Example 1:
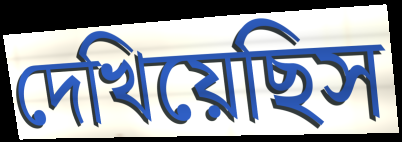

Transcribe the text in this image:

দেখিয়েছিস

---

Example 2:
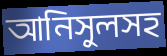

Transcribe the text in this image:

আনিসুলসহ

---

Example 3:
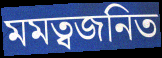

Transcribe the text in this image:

মমত্বজনিত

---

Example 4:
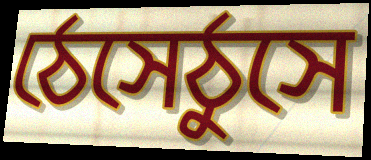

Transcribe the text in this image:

ঠেসেঠুসে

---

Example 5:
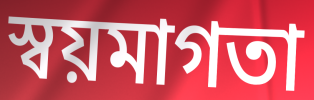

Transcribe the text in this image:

স্বয়মাগতা